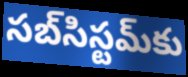
సబ్‌సిస్టమ్‌కు